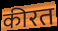
कीरत